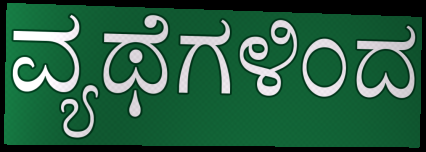
ವ್ಯಥೆಗಳಿಂದ